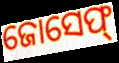
ଜୋସେଫ୍